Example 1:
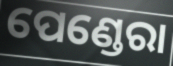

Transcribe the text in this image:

ପେଣ୍ଡେରା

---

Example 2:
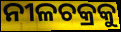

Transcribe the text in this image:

ନୀଳଚକ୍ରକୁ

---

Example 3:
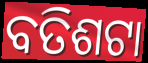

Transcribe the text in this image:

ବତିଶଟା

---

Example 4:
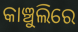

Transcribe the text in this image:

କାଞ୍ଚୁଲିରେ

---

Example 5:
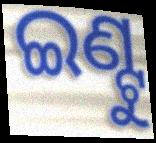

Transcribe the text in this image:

ଇଣ୍ଟୁ